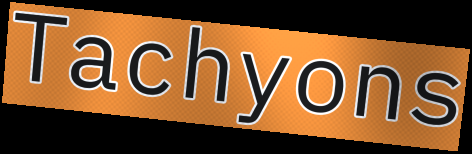
Tachyons